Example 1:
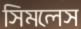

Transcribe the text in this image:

সিমলেস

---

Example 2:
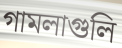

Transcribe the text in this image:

গামলাগুলি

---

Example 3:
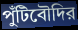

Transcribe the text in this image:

পুঁটিবৌদির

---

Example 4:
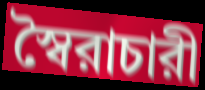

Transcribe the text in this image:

স্বৈরাচারী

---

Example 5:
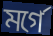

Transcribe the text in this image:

মর্গে